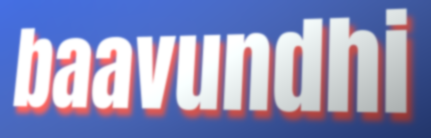
baavundhi